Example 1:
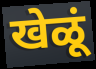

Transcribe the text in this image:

खेळूं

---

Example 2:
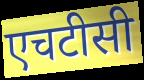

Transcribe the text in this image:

एचटीसी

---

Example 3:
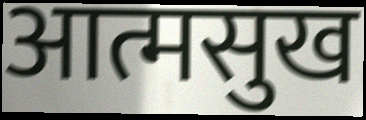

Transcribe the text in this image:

आत्मसुख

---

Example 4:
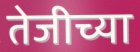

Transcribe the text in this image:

तेजीच्या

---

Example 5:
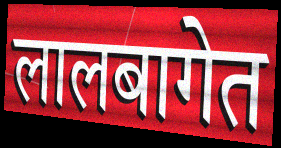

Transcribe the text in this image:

लालबागेत